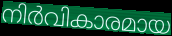
നിർവികാരമായ